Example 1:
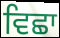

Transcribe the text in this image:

ਵਿਛਾ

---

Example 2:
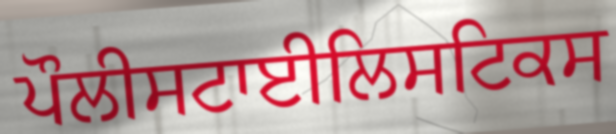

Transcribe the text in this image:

ਪੌਲੀਸਟਾਈਲਿਸਟਿਕਸ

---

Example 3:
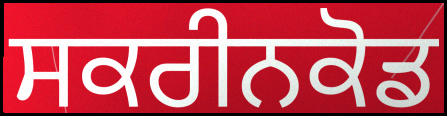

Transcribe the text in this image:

ਸਕਰੀਨਕੋਡ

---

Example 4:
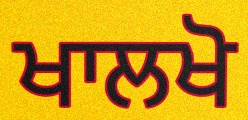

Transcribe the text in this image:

ਖਾਲਖੋ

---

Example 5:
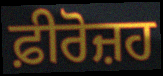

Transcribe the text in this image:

ਫ਼ੀਰੋਜ਼ਹ